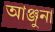
আঞ্জুনা